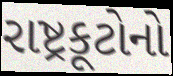
રાષ્ટ્રકૂટોનો